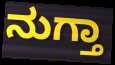
ನುಗ್ತಾ